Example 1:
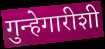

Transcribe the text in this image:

गुन्हेगारीशी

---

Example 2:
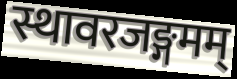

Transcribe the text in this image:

स्थावरजङ्गमम्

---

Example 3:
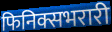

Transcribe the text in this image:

फिनिक्सभरारी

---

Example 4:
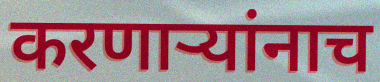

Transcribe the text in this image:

करणार्‍यांनाच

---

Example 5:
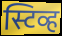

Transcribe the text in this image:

स्टिव्ह